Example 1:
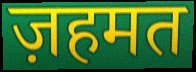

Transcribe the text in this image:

ज़हमत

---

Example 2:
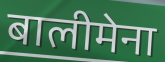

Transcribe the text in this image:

बालीमेना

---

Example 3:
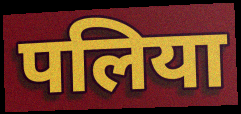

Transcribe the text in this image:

पलिया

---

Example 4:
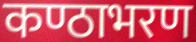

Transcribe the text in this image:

कण्ठाभरण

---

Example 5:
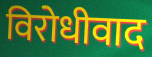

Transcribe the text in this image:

विरोधीवाद